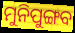
ମୁନିପୁଙ୍ଗବ